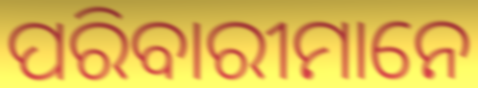
ପରିବାରୀମାନେ